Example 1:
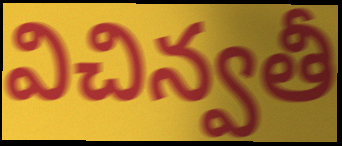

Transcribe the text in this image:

విచిన్వతీ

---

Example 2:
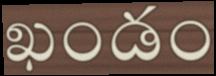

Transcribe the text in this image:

ఖండం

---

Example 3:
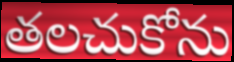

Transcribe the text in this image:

తలచుకోను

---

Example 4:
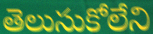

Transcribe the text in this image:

తెలుసుకోలేని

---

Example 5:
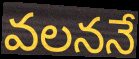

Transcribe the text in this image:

వలననే